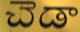
చెడా